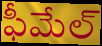
ఫీమేల్